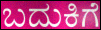
ಬದುಕಿಗೆ